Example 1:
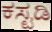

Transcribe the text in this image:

ಕಸ್ಟಡಿ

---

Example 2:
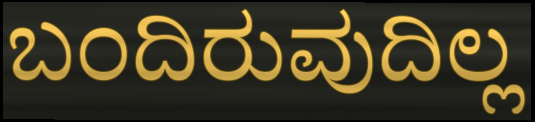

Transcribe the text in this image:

ಬಂದಿರುವುದಿಲ್ಲ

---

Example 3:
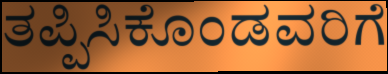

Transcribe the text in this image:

ತಪ್ಪಿಸಿಕೊಂಡವರಿಗೆ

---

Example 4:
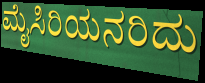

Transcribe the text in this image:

ಮೈಸಿರಿಯನರಿದು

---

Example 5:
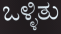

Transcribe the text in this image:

ಒಳ್ಳಿತು